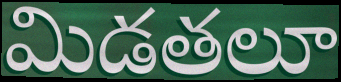
మిడతలూ